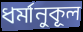
ধর্মানুকূল